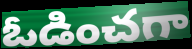
ఓడించగా